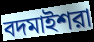
বদমাইশরা